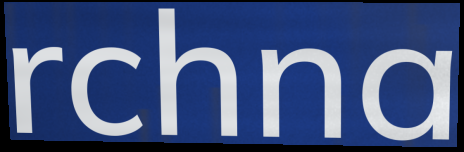
rchna